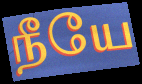
நீயே